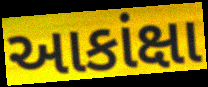
આકાંક્ષા